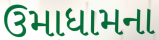
ઉમાધામના